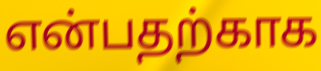
என்பதற்காக